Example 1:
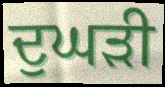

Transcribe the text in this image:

ਦੁਘੜੀ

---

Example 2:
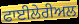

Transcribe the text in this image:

ਫਾਈਲੇਰੀਅਲ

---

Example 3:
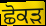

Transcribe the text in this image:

ਛੋਕੜ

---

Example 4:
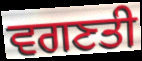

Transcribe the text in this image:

ਵਗਣਤੀ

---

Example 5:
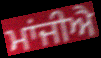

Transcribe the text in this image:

ਮਾਂਜੀਐ